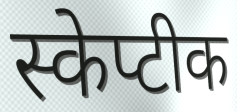
स्केप्टीक